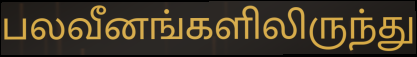
பலவீனங்களிலிருந்து